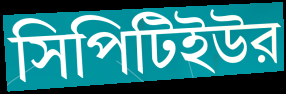
সিপিটিইউর